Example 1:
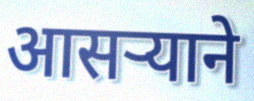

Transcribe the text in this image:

आसर्‍याने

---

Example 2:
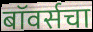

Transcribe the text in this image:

बॉवर्सचा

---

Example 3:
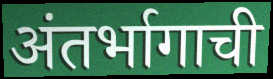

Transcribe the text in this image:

अंतर्भागाची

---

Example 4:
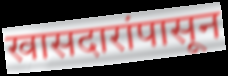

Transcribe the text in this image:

खासदारांपासून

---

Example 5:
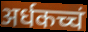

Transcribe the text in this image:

अर्धकच्चं